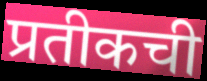
प्रतीकची